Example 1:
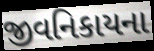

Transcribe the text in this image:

જીવનિકાયના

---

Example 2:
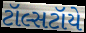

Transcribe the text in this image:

ટૉલ્સટૉયે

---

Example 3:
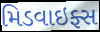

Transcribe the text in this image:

મિડવાઇફ્સ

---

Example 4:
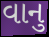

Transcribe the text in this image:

વાનુ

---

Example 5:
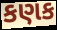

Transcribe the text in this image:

કણક